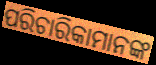
ପରିଚାରିକାମାନଙ୍କ